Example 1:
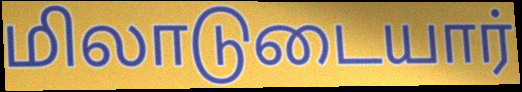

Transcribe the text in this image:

மிலாடுடையார்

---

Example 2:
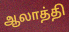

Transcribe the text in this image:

ஆலாத்தி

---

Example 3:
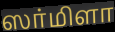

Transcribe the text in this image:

ஸர்மிளா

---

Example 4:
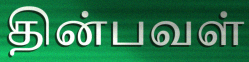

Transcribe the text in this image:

தின்பவள்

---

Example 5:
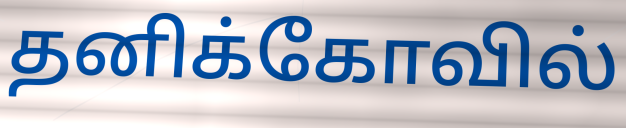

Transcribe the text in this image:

தனிக்கோவில்